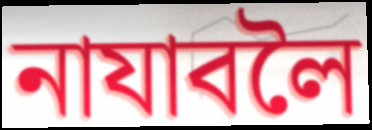
নাযাবলৈ